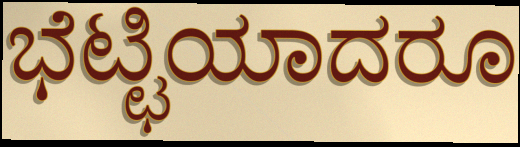
ಭೆಟ್ಟಿಯಾದರೂ